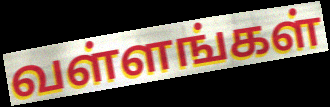
வள்ளங்கள்